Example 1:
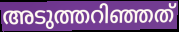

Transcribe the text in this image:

അടുത്തറിഞ്ഞത്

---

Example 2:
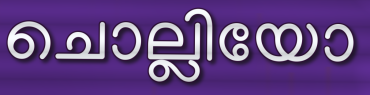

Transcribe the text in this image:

ചൊല്ലിയോ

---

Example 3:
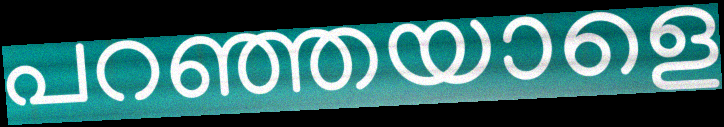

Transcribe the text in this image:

പറഞ്ഞയാളെ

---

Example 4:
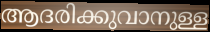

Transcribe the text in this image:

ആദരിക്കുവാനുള്ള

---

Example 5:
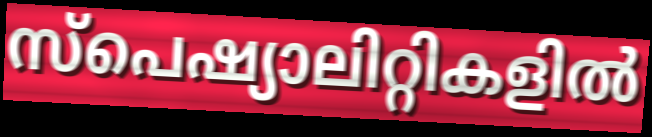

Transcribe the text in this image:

സ്പെഷ്യാലിറ്റികളിൽ